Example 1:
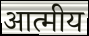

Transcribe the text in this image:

आत्मीय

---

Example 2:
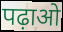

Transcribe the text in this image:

पढ़ाओ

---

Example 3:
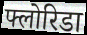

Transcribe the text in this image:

फ्लोरिडा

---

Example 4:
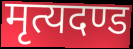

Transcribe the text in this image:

मृत्यदण्ड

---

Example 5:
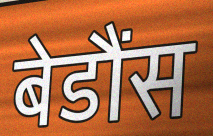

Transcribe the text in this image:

बेडौंस